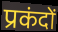
प्रकंदों